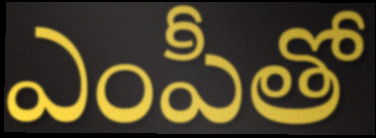
ఎంపీతో